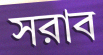
সরাব